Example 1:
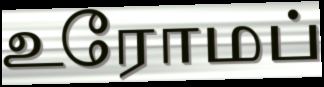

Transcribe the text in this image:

உரோமப்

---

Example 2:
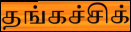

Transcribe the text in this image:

தங்கச்சிக்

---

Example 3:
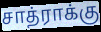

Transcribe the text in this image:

சாத்ராக்கு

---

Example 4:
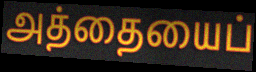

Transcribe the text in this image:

அத்தையைப்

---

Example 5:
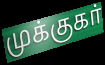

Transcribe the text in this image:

முக்குகர்